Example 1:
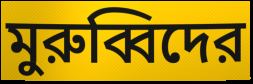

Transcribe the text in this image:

মুরুব্বিদের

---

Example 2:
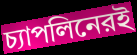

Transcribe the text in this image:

চ্যাপলিনেরই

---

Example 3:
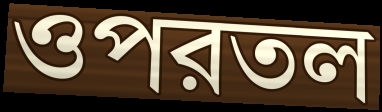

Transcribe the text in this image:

ওপরতল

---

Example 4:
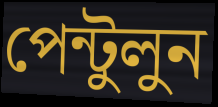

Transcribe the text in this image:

পেন্টুলুন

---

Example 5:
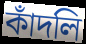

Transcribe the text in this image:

কাঁদলি